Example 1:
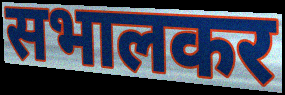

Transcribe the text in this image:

सभालकर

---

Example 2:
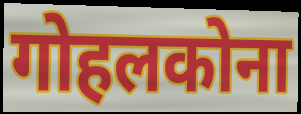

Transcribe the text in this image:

गोहलकोना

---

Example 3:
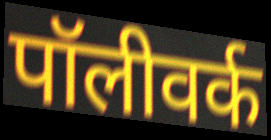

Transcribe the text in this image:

पॉलीवर्क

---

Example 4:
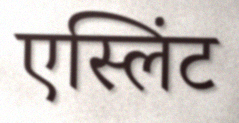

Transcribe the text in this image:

एस्लिंट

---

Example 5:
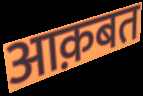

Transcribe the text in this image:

आक़बत